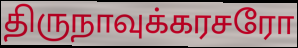
திருநாவுக்கரசரோ